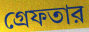
গ্রেফতার